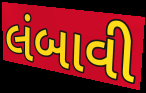
લંબાવી